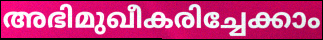
അഭിമുഖീകരിച്ചേക്കാം